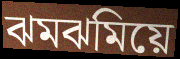
ঝমঝমিয়ে